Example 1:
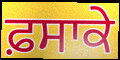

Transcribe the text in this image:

ਫ਼ਸਾਕੇ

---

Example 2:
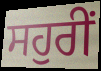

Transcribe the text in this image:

ਸਹੁਰੀਂ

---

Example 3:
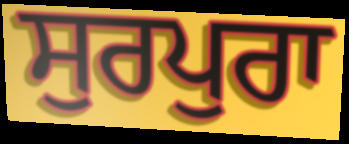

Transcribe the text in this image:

ਸੁਰਪੁਰਾ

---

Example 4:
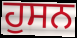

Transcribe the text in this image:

ਹੁਸਨ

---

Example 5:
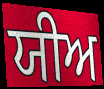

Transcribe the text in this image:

ਯੀਅ